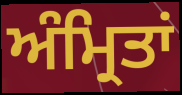
ਅੰਮ੍ਰਿਤਾਂ